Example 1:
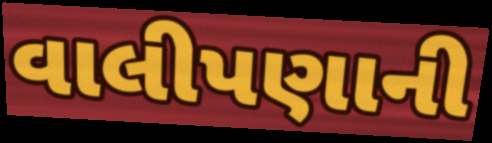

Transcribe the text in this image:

વાલીપણાની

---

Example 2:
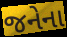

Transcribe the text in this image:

જનેના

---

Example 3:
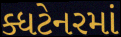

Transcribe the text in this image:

ક્ધટેનરમાં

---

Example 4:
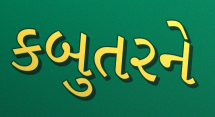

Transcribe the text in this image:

કબુતરને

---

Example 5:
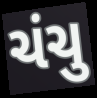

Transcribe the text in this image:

ચંચુ